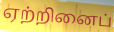
ஏற்றினைப்